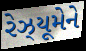
રેઝ્યૂમેને